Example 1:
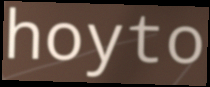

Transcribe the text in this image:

hoyto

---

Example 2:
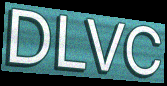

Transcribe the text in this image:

DLVC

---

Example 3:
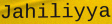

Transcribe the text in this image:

Jahiliyya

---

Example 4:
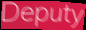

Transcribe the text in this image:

Deputy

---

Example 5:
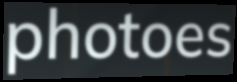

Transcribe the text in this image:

photoes